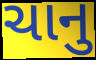
ચાનુ